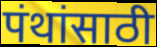
पंथांसाठी